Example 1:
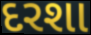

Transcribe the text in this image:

દરશા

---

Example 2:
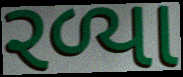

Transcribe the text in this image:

રળ્યા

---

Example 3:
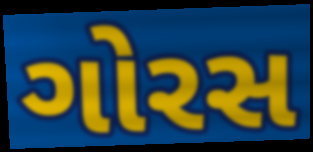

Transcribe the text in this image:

ગોરસ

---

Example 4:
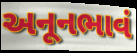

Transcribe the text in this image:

અનૂનભાવં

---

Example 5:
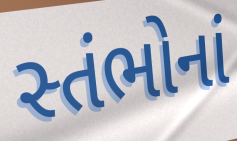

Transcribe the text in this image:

સ્તંભોનાં